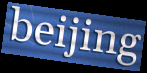
beijing